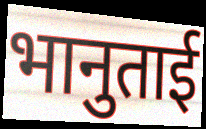
भानुताई